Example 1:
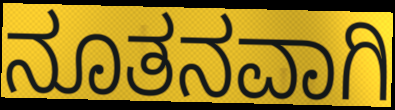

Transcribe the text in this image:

ನೂತನವಾಗಿ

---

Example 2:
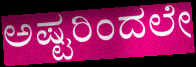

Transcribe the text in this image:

ಅಷ್ಟರಿಂದಲೇ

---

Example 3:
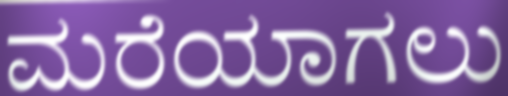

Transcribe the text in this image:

ಮರೆಯಾಗಲು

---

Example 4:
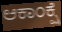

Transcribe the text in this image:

ಆಕಾಂಕ್ಷೆ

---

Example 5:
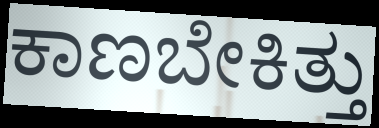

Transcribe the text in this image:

ಕಾಣಬೇಕಿತ್ತು